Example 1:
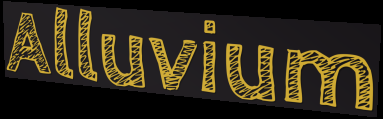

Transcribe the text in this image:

Alluvium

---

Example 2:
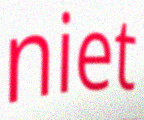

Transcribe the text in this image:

niet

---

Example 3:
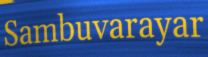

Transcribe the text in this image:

Sambuvarayar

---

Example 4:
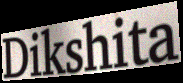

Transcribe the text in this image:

Dikshita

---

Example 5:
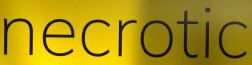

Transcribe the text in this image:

necrotic